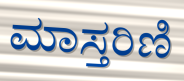
ಮಾಸ್ತರಿಣಿ